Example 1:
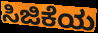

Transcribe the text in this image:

ಸಿಜಿಕೆಯ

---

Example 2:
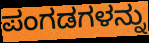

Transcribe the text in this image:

ಪಂಗಡಗಳನ್ನು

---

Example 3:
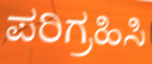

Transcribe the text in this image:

ಪರಿಗ್ರಹಿಸಿ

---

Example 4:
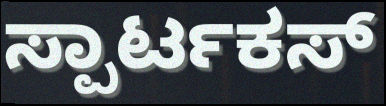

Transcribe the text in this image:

ಸ್ಪಾರ್ಟಕಸ್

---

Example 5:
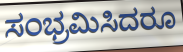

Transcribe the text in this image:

ಸಂಭ್ರಮಿಸಿದರೂ